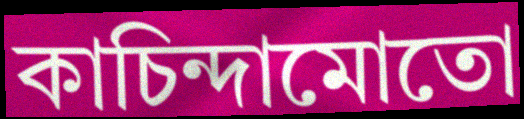
কাচিন্দামোতো